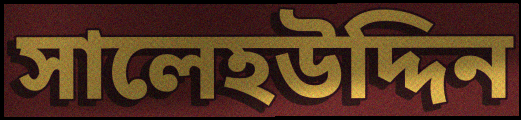
সালেহউদ্দিন